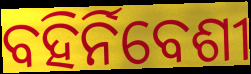
ବହିର୍ନିବେଶୀ